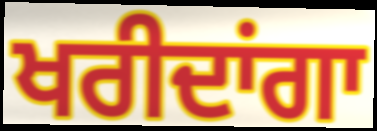
ਖਰੀਦਾਂਗਾ